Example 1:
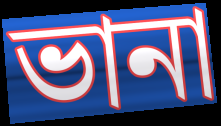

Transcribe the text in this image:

ভানা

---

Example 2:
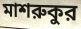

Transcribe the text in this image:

মাশরুকুর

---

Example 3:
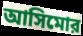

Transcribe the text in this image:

আসিমোর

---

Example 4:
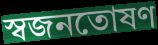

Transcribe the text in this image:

স্বজনতোষণ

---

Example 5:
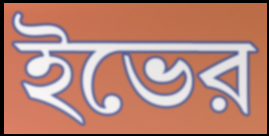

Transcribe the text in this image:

ইভের